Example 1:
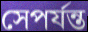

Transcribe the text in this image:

সেপর্যন্ত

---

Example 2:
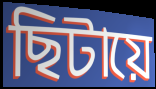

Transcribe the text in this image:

ছিটায়ে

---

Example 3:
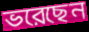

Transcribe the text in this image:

ভরেছেন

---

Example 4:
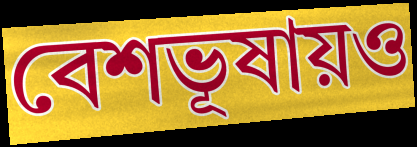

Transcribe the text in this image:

বেশভূষায়ও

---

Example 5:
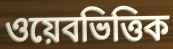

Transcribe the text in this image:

ওয়েবভিত্তিক